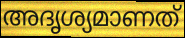
അദൃശ്യമാണത്